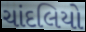
ચાંદલિયો